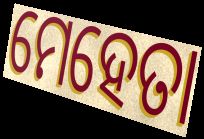
ମେହେତା